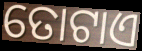
ତୋଟାଏ